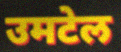
उमटेल